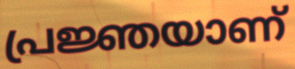
പ്രജ്ഞയാണ്